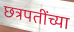
छत्रपतींच्या